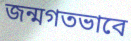
জন্মগতভাবে